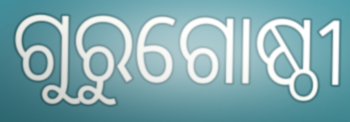
ଗୁରୁଗୋଷ୍ଠୀ